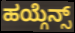
ಹಯ್ಗೆನ್ಸ್